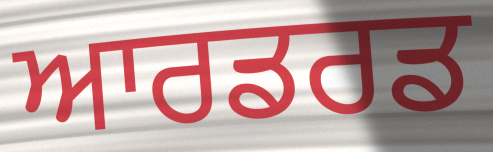
ਆਰਡਰਡ